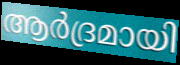
ആർദ്രമായി